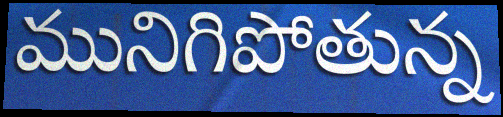
మునిగిపోతున్న